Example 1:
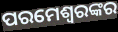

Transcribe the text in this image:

ପରମେଶ୍ଵରଙ୍କର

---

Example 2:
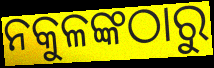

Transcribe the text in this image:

ନକୁଳଙ୍କଠାରୁ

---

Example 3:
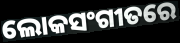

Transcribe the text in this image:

ଲୋକସଂଗୀତରେ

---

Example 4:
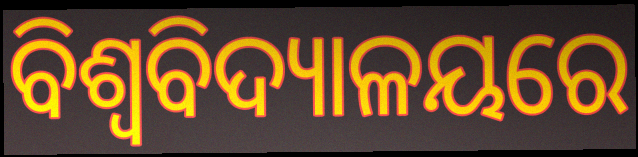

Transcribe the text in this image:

ବିଶ୍ୱବିଦ୍ୟାଳୟରେ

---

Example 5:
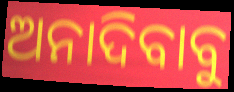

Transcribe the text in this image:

ଅନାଦିବାବୁ